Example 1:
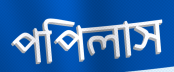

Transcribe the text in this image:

পপিলাস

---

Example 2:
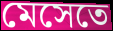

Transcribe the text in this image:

মেসেতে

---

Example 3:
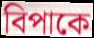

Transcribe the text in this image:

বিপাকে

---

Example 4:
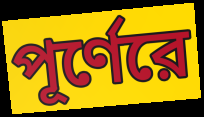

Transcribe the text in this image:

পূর্ণেরে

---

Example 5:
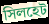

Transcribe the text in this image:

সিলহেট